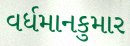
વર્ધમાનકુમાર